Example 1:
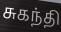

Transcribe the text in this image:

சுகந்தி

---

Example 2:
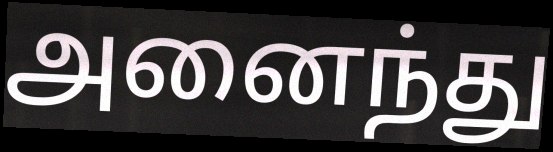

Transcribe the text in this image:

அனைந்து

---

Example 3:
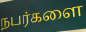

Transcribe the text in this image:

நபர்களை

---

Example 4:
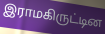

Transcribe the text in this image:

இராமகிருட்டின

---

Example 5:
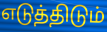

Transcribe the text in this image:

எடுத்திடும்